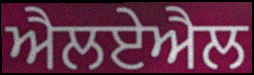
ਐਲਏਐਲ